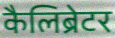
कैलिब्रेटर